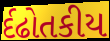
ર્દઢોતકીય